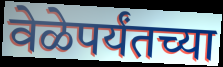
वेळेपर्यंतच्या